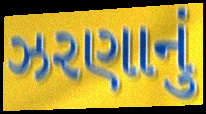
ઝરણાનું